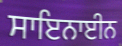
ਸਾਇਨਾਈਨ